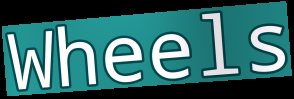
Wheels